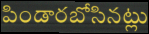
పిండారబోసినట్లు